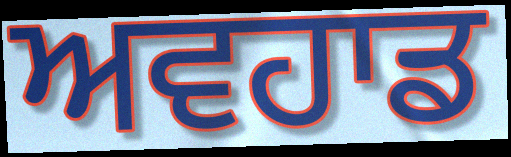
ਅਵਹਾਡ